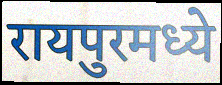
रायपुरमध्ये